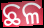
ଛଳ